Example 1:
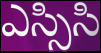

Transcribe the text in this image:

ఎస్సిసి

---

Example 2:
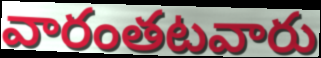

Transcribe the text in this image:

వారంతటవారు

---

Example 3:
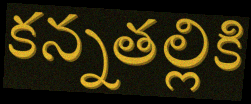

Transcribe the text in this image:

కన్నతల్లికి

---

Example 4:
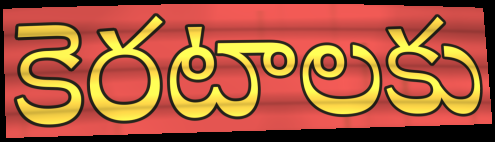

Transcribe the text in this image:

కెరటాలకు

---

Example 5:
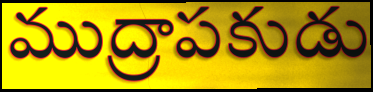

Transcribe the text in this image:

ముద్రాపకుడు